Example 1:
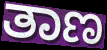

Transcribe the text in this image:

ತಾಣ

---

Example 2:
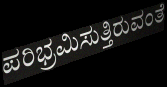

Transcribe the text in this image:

ಪರಿಭ್ರಮಿಸುತ್ತಿರುವಂತೆ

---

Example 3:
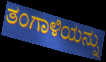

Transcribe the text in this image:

ತಂಗಾಳಿಯನ್ನು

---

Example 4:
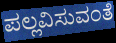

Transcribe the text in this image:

ಪಲ್ಲವಿಸುವಂತೆ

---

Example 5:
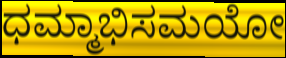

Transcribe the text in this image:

ಧಮ್ಮಾಭಿಸಮಯೋ